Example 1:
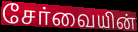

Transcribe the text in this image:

சேர்வையின்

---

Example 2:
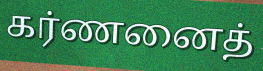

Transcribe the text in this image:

கர்ணனைத்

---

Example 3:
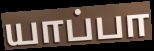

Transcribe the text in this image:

யாப்பா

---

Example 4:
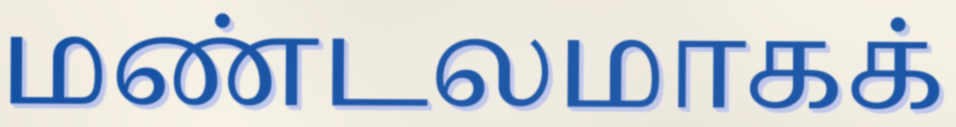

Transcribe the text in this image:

மண்டலமாகக்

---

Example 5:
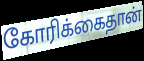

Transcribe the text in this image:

கோரிக்கைதான்